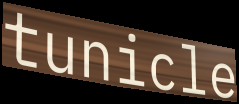
tunicle